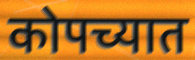
कोपच्यात